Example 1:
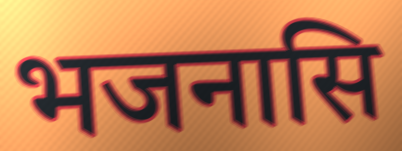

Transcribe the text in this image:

भजनासि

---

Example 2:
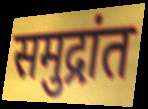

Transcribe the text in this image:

समुद्रांत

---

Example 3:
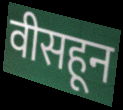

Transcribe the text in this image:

वीसहून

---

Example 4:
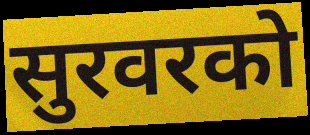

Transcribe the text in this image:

सुरवरको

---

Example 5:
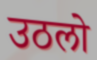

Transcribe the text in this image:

उठलो